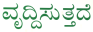
ವೃದ್ದಿಸುತ್ತದೆ